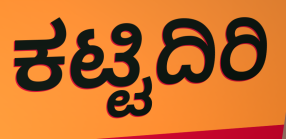
ಕಟ್ಟಿದಿರಿ